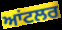
ਆਂਟਲਰ